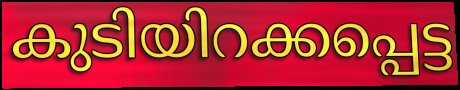
കുടിയിറക്കപ്പെട്ട